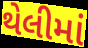
થેલીમાં